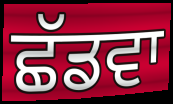
ਛੱਡਵਾ